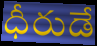
ధీరుడే